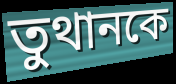
তুথানকে